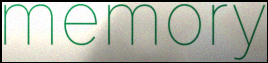
memory